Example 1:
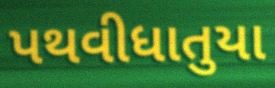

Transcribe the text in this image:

પથવીધાતુયા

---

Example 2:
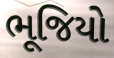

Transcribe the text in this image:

ભૂજિયો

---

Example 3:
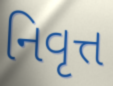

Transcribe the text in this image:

નિવૃત્ત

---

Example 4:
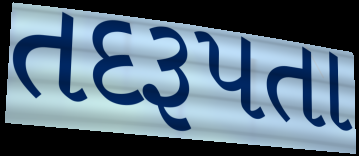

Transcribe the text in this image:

તદરૂપતા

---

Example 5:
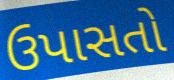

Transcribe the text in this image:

ઉપાસતો